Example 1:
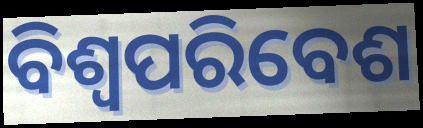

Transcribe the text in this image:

ବିଶ୍ୱପରିବେଶ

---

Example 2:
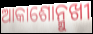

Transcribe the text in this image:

ଆକାଶୋନ୍ମୁଖୀ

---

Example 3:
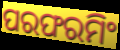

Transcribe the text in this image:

ପରଫରମିଂ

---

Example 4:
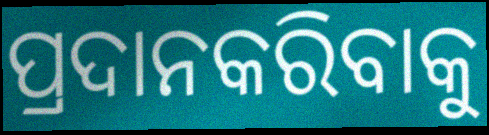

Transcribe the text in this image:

ପ୍ରଦାନକରିବାକୁ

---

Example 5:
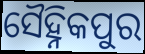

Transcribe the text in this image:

ସୈହ୍ନିକପୁର